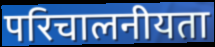
परिचालनीयता